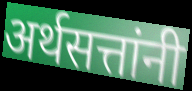
अर्थसत्तांनी